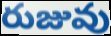
రుజువు